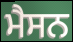
ਮੈਸਨ